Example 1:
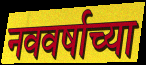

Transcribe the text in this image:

नववर्षाच्या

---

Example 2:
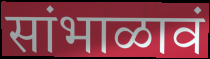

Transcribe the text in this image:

सांभाळावं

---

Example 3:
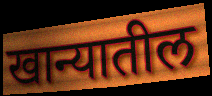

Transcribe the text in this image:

खान्यातील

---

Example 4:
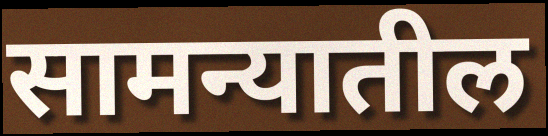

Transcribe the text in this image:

सामन्यातील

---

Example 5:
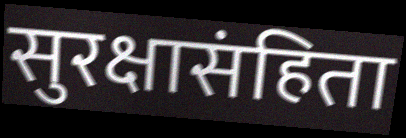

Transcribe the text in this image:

सुरक्षासंहिता